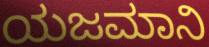
ಯಜಮಾನಿ